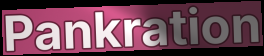
Pankration